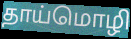
தாய்மொழி